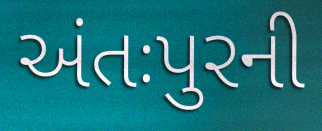
અંતઃપુરની